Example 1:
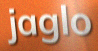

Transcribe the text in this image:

jaglo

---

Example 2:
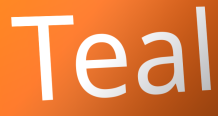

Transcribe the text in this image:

Teal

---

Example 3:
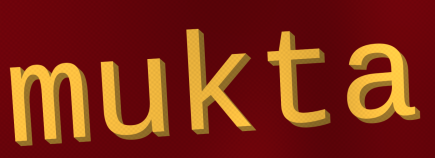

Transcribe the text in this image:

mukta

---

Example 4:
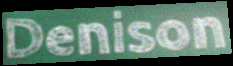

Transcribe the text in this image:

Denison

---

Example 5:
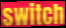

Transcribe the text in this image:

switch